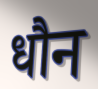
धौन